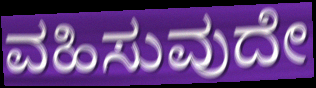
ವಹಿಸುವುದೇ